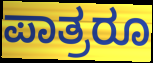
ಪಾತ್ರರೂ